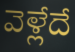
వెళ్లేదే